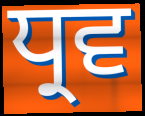
ਧ੍ਰਵ